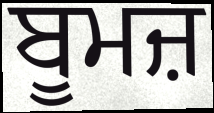
ਬੂਮਜ਼